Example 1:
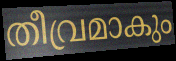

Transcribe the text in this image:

തീവ്രമാകും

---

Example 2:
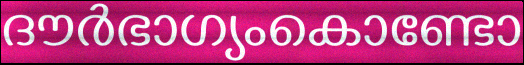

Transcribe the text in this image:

ദൗർഭാഗ്യംകൊണ്ടോ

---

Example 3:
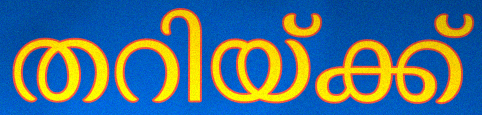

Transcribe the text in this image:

തറിയ്ക്ക്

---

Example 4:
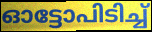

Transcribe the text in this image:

ഓട്ടോപിടിച്ച്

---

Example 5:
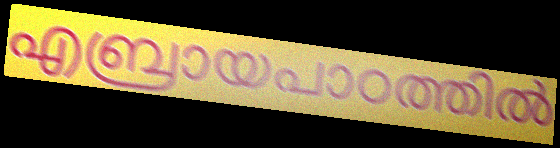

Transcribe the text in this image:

എബ്രായപാഠത്തിൽ